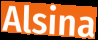
Alsina